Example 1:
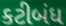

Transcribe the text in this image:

કટીબંધ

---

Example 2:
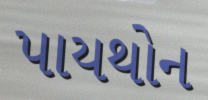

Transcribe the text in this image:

પાયથોન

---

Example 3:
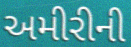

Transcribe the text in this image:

અમીરીની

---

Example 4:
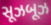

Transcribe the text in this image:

સૂઝબૂઝ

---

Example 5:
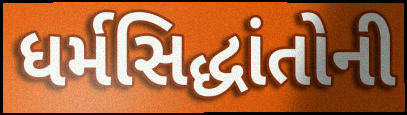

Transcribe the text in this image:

ધર્મસિદ્ધાંતોની